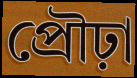
প্রৌঢ়া